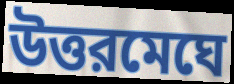
উত্তরমেঘে